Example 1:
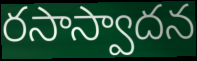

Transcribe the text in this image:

రసాస్వాదన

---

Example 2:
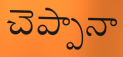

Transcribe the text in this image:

చెప్పానా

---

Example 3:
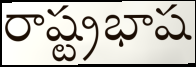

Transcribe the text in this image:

రాష్ట్రభాష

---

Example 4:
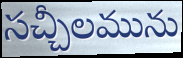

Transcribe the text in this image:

సచ్చీలమును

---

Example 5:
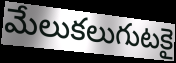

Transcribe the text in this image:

మేలుకలుగుటకై